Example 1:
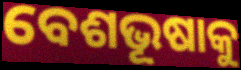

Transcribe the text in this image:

ବେଶଭୂଷାକୁ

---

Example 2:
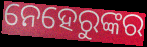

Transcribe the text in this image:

ନେହେରୁଙ୍କର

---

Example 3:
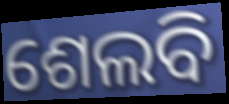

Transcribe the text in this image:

ଶେଲବି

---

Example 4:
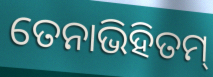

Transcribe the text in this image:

ତେନାଭିହିତମ୍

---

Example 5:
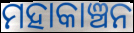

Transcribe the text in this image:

ମହାକାଞ୍ଚନ